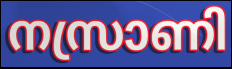
നസ്രാണി